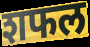
शफल